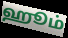
ஹூம்